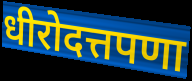
धीरोदत्तपणा